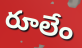
రూలేం